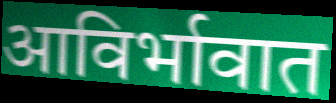
आविर्भावात